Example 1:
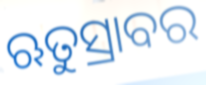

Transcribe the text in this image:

ଋତୁସ୍ରାବର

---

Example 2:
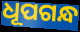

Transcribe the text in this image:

ଧୂପଗନ୍ଧ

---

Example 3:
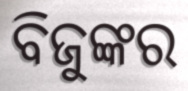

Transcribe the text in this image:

ବିଜୁଙ୍କର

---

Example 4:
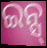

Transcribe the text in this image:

ଇନ୍ସ୍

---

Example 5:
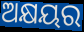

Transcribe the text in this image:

ଅକ୍ଷୟର